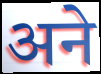
अने